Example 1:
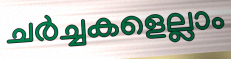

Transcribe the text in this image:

ചർച്ചകളെല്ലാം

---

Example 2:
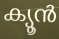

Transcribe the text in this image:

ക്യൂൻ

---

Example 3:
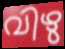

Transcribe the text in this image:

വിഴു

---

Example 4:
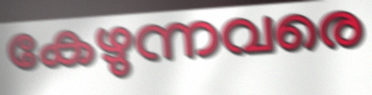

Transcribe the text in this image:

കേഴുന്നവരെ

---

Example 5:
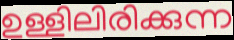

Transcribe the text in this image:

ഉള്ളിലിരിക്കുന്ന